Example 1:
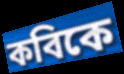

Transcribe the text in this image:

কবিকে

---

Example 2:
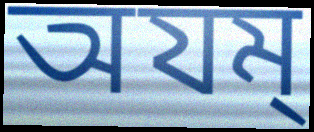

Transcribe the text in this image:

অযম্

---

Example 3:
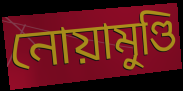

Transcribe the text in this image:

নোয়ামুণ্ডি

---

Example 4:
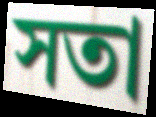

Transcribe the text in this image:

সতা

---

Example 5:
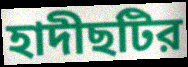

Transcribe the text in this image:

হাদীছটির